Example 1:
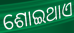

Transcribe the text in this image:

ଶୋଇଥାଏ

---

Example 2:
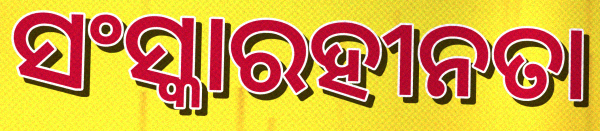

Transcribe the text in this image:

ସଂସ୍କାରହୀନତା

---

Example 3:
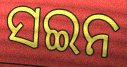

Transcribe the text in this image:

ସଇନ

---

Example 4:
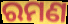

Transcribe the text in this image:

ରମଣ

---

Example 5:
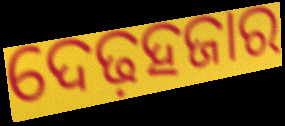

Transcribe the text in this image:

ଦେଢ଼ହଜାର